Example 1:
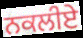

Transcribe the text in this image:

ਨਕਲੀਏ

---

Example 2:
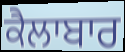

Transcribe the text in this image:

ਕੈਲਾਬਾਰ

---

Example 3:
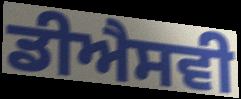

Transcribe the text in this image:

ਡੀਐਸਵੀ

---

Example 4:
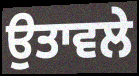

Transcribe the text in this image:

ਉਤਾਵਲੇ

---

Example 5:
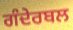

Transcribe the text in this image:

ਗੰਦੇਰਬਲ